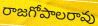
రాజగోపాలరావు